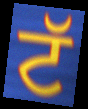
ਟੱ